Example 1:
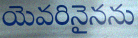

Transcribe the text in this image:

యెవరినైనను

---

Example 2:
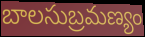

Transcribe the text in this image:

బాలసుబ్రమణ్యం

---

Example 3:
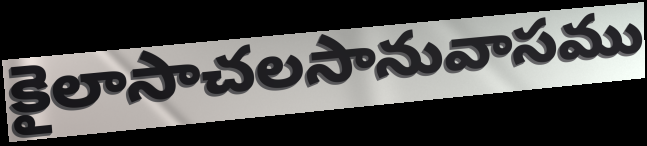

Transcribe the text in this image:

కైలాసాచలసానువాసము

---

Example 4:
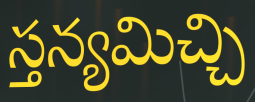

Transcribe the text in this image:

స్తన్యమిచ్చి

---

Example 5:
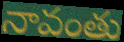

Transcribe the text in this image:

నావంతు